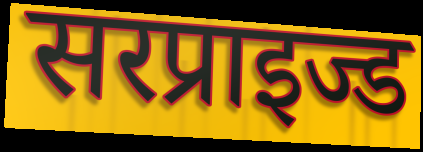
सरप्राइज्ड